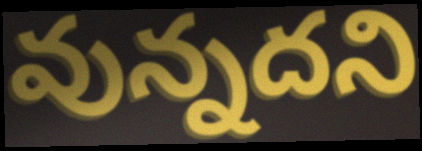
వున్నదని